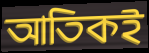
আতিকই